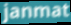
janmat